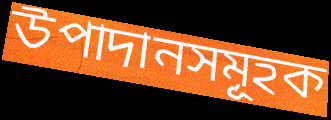
উপাদানসমূহক